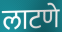
लाटणे